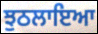
ਝੁਠਲਾਇਆ